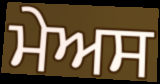
ਮੇਅਸ